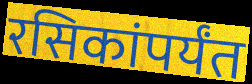
रसिकांपर्यंत